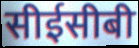
सीईसीबी